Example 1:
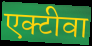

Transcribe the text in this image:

एक्टीवा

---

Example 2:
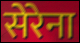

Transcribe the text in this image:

सेरेना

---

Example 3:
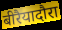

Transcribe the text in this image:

बीरैयादौरा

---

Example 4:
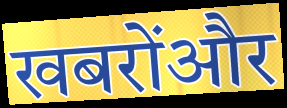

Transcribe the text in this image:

खबरोंऔर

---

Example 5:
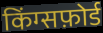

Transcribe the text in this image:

किंग्सफ़ोर्ड